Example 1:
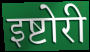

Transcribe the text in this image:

इष्टोरी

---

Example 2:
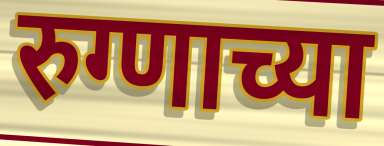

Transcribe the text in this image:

रुग्णाच्या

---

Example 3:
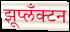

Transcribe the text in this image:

झूप्लँक्टन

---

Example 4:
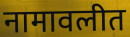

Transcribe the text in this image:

नामावलीत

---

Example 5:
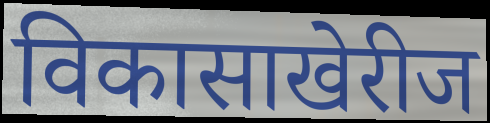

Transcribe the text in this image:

विकासाखेरीज